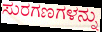
ಸುರಗಣಗಳನ್ನು